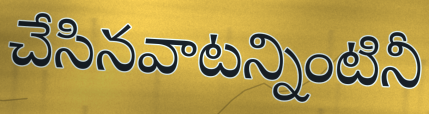
చేసినవాటన్నింటినీ